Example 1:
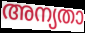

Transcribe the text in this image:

അന്യതാ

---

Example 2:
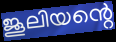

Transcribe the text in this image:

ജൂലിയന്റെ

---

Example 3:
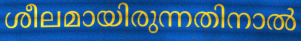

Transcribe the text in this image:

ശീലമായിരുന്നതിനാൽ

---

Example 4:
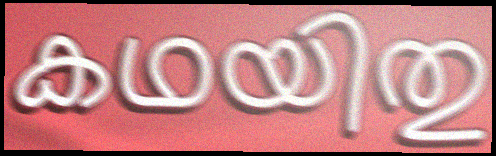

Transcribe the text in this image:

കഥയിതു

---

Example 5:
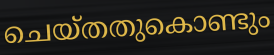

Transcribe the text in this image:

ചെയ്തതുകൊണ്ടും